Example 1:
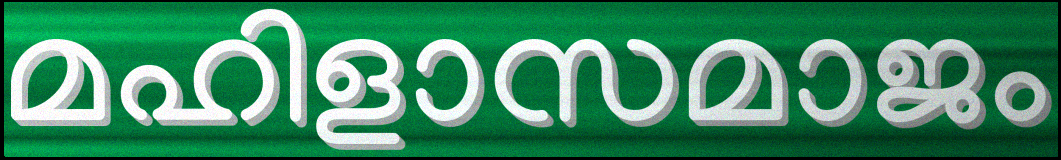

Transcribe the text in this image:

മഹിളാസമാജം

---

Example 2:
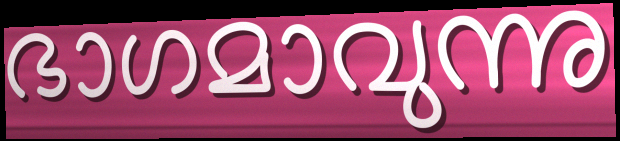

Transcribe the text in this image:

ഭാഗമാവുന്നു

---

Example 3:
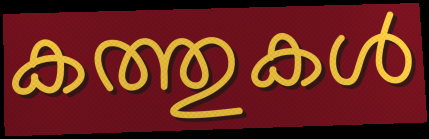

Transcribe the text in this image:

കത്തുകൾ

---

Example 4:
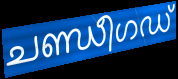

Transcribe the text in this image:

ചണ്ഡീഗഡ്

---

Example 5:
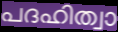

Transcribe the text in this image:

പദഹിത്വാ